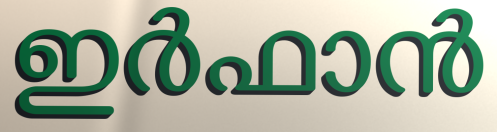
ഇർഫാൻ